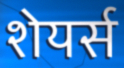
शेयर्स